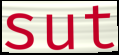
sut